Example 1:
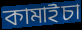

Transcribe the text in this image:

কামাইচা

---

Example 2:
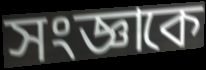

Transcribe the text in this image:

সংজ্ঞাকে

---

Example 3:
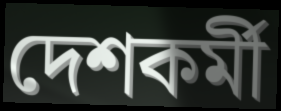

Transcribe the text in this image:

দেশকর্মী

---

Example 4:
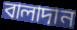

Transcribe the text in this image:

বালাদান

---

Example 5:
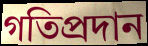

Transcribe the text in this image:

গতিপ্রদান